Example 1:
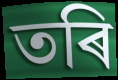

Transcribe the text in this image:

তৰি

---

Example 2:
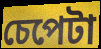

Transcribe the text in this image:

চেপেটা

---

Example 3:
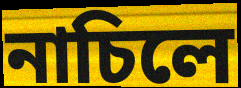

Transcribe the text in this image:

নাচিলে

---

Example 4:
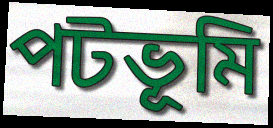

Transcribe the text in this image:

পটভূমি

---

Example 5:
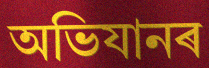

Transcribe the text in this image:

অভিযানৰ